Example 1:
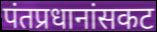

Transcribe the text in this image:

पंतप्रधानांसकट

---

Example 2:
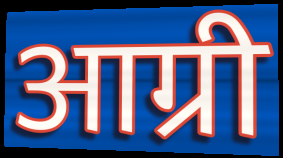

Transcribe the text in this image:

आग्री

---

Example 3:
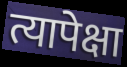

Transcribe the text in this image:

त्यापेक्षा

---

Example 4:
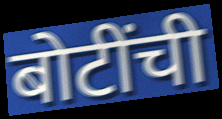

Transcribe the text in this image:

बोटींची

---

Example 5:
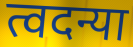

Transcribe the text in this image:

त्वदन्या